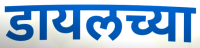
डायलच्या